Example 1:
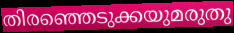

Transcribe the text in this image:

തിരഞ്ഞെടുക്കയുമരുതു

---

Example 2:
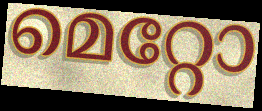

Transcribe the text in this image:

മെറ്റോ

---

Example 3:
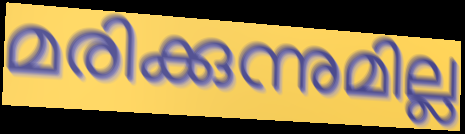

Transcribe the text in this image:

മരിക്കുന്നുമില്ല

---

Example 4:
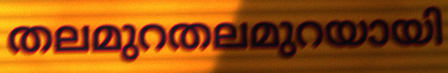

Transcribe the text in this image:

തലമുറതലമുറയായി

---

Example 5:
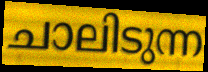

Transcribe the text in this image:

ചാലിടുന്ന